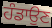
ਹੰਡਾਉਣ